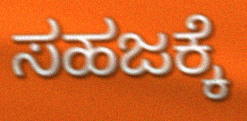
ಸಹಜಕ್ಕೆ